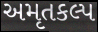
અમૃતકલ્પ